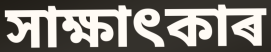
সাক্ষাৎকাৰ